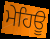
ਮੇਹਿਊ